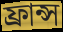
ফ্ৰান্স